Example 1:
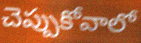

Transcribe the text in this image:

చెప్పుకోవాలో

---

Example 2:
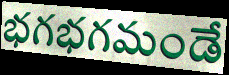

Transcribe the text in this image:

భగభగమండే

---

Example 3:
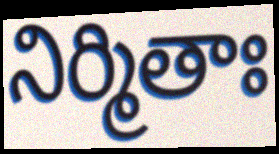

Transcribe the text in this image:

నిర్మితాః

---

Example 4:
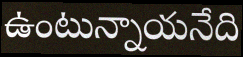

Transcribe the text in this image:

ఉంటున్నాయనేది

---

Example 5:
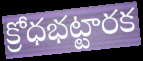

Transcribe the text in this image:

క్రోధభట్టారక